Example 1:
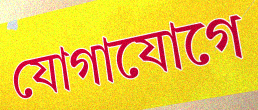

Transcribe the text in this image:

যোগাযোগে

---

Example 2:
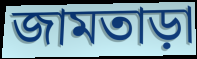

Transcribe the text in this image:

জামতাড়া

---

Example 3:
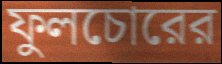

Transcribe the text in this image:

ফুলচোরের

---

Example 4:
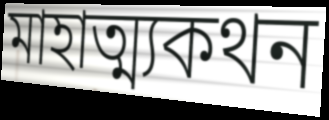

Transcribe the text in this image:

মাহাত্ম্যকথন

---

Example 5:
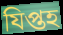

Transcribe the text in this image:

যিপ্তহ